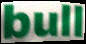
bull